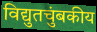
विद्युतचुंबकीय